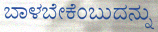
ಬಾಳಬೇಕೆಂಬುದನ್ನು